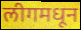
लीगमधून